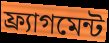
ফ্র্যাগমেন্ট